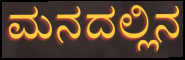
ಮನದಲ್ಲಿನ